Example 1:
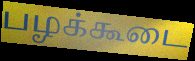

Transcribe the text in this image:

பழக்கூடை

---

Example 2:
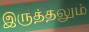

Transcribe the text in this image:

இருத்தலும்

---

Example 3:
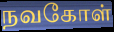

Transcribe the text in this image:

நவகோள்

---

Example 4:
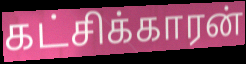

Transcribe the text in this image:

கட்சிக்காரன்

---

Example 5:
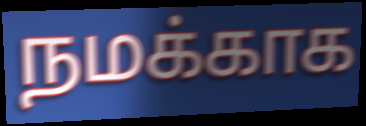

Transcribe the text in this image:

நமக்காக